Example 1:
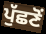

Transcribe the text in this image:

ਪੁੱਛਣੋਂ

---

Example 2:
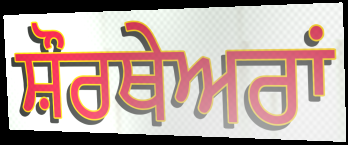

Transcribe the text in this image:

ਸ਼ੌਰਥੇਅਰਾਂ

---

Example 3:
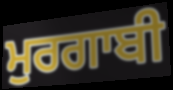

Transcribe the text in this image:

ਮੁਰਗਾਬੀ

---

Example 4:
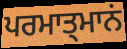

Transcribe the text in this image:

ਪਰਮਾਤ੍ਮਾਨਂ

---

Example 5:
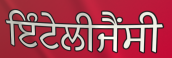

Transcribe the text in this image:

ਇੰਟੇਲੀਜੈਂਸੀ